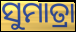
ସୁମାତ୍ରା